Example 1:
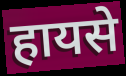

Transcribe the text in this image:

हायसे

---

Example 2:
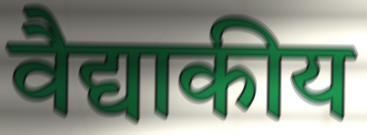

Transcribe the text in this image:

वैद्याकीय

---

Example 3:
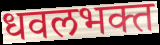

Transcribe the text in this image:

धवलभक्त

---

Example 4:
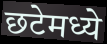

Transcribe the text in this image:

छटेमध्ये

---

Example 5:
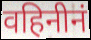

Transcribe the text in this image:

वहिनीनं